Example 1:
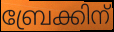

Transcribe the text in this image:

ബ്രേക്കിന്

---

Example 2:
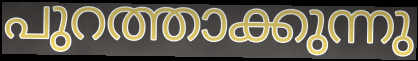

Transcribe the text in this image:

പുറത്താക്കുന്നു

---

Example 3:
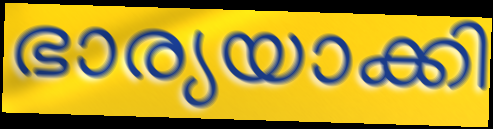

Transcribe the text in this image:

ഭാര്യയാക്കി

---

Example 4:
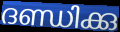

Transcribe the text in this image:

ദണ്ഡിക്കു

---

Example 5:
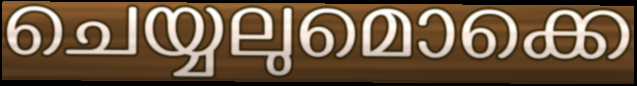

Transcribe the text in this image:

ചെയ്യലുമൊക്കെ